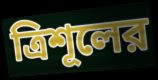
ত্রিশূলের